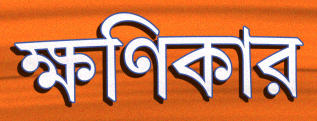
ক্ষণিকার